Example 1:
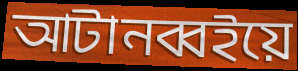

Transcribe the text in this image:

আটানব্বইয়ে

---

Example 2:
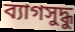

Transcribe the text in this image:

ব্যাগসুদ্ধু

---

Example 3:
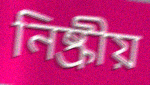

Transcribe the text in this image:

নিষ্ক্রীয়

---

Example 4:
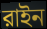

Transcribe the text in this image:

রাইন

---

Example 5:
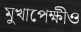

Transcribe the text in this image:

মুখাপেক্ষীও